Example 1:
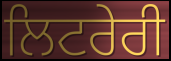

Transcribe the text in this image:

ਲਿਟਰੇਰੀ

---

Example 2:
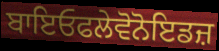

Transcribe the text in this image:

ਬਾਇਓਫਲੇਵੋਨੋਇਡਜ਼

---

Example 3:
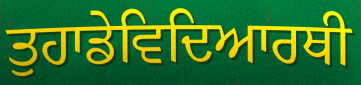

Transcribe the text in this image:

ਤੁਹਾਡੇਵਿਦਿਆਰਥੀ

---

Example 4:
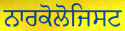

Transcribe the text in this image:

ਨਾਰਕੋਲੋਜਿਸਟ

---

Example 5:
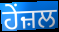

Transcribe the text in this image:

ਹੇਂਜ਼ਲ